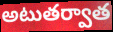
అటుతర్వాత